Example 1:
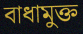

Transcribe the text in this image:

বাধামুক্ত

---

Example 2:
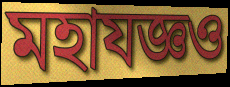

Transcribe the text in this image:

মহাযজ্ঞও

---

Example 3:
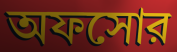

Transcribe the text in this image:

অফসোর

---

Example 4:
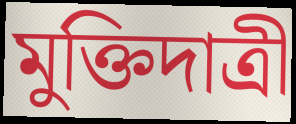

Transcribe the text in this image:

মুক্তিদাত্রী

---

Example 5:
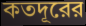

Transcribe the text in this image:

কতদূরের